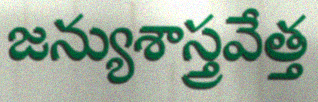
జన్యుశాస్త్రవేత్త